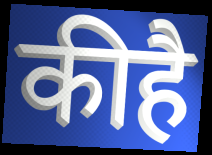
कीहै